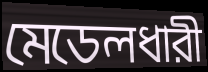
মেডেলধারী